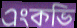
এংকভি